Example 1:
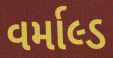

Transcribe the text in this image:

વર્માલ્ડ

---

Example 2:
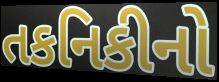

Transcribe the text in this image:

તકનિકીનો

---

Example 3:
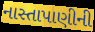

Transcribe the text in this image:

નાસ્તાપાણીની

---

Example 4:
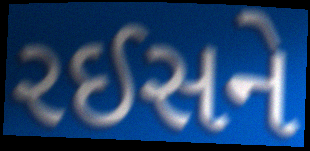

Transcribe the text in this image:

રઈસને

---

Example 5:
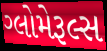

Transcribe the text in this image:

ગ્લોમેરૂલ્સ